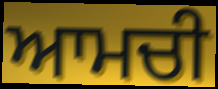
ਆਮਚੀ